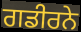
ਗਡੀਰਨੇ